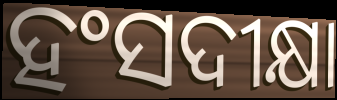
ହଂସଦୀକ୍ଷା